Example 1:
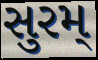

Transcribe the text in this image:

સુરમ્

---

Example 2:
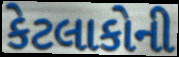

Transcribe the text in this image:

કેટલાકોની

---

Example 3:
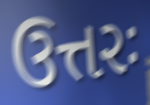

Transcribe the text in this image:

ઉત્તરઃ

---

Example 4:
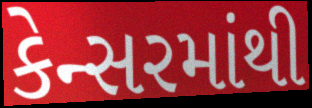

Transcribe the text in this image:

કેન્સરમાંથી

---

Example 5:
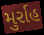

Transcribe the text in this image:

મુર્રાહ